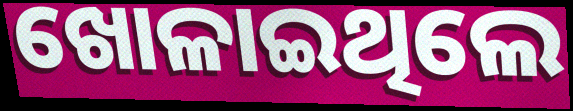
ଖୋଳାଇଥିଲେ